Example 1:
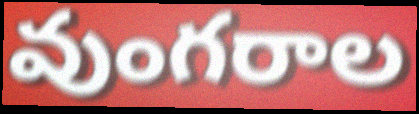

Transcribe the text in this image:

వుంగరాల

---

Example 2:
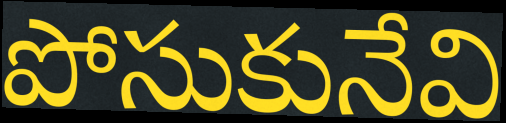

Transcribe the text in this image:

పోసుకునేవి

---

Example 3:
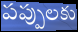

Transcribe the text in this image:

పప్పులకు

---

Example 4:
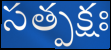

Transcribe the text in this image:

సత్పక్షః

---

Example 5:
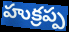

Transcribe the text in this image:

హుక్రప్ప